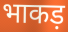
भाकड़